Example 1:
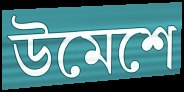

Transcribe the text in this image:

উমেশে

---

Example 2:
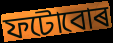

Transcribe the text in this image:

ফটোবোৰ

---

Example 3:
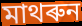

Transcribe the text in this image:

মাথৰুন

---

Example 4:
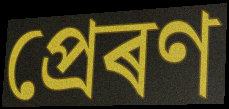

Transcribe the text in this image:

প্ৰেৰণ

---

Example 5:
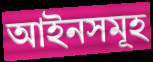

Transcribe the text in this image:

আইনসমূহ